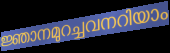
ജ്ഞാനമുറച്ചവനറിയാം